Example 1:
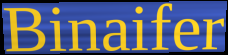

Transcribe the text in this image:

Binaifer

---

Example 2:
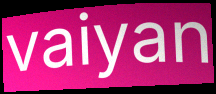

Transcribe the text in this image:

vaiyan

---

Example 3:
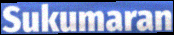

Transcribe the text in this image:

Sukumaran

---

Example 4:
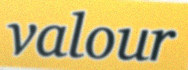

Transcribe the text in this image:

valour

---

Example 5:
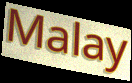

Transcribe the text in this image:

Malay